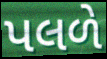
પલળે